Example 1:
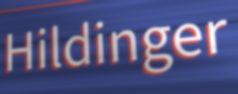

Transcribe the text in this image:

Hildinger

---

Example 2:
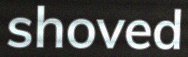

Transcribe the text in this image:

shoved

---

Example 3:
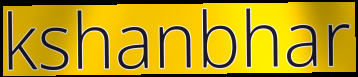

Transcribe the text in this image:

kshanbhar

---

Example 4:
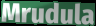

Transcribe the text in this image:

Mrudula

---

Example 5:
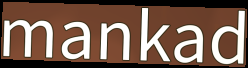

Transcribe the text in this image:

mankad